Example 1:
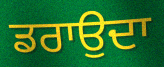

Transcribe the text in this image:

ਡਰਾਉਦਾ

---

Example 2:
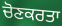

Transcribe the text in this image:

ਚੋਣਕਰਤਾ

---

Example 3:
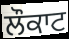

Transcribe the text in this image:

ਲੌਕਾਟ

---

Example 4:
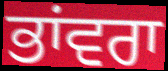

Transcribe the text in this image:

ਭਾਂਵਰਾ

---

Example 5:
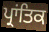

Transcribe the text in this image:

ਪ੍ਰਾਂਤਿਕ